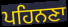
ਪਹਿਨਣਾ